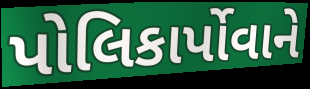
પોલિકાર્પોવાને